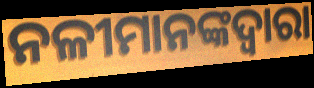
ନଳୀମାନଙ୍କଦ୍ୱାରା